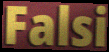
Falsi